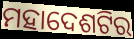
ମହାଦେଶଟିର